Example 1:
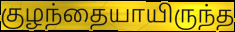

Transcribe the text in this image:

குழந்தையாயிருந்த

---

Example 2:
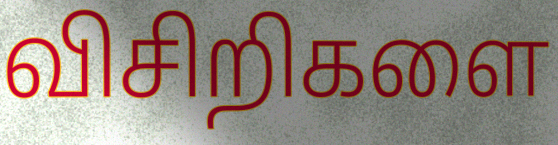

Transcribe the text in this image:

விசிறிகளை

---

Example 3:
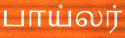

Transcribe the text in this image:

பாய்லர்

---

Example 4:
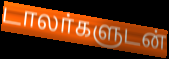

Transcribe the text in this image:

டாலர்களுடன்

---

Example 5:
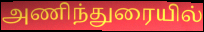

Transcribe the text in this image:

அணிந்துரையில்